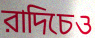
রাদিচেও